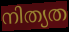
നിത്യത